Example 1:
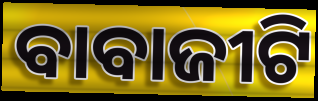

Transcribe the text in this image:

ବାବାଜୀଟି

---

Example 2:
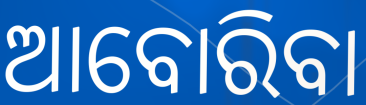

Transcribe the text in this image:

ଆବୋରିବା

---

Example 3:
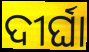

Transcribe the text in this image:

ଦୀର୍ଘା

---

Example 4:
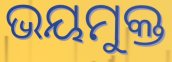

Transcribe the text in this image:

ଭୟମୁକ୍ତ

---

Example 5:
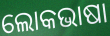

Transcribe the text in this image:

ଲୋକଭାଷା